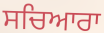
ਸਚਿਆਰਾ